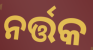
ନର୍ତ୍ତକ